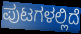
ಪುಟಗಳಲ್ಲಿದೆ